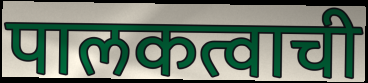
पालकत्वाची